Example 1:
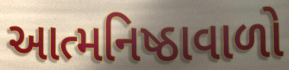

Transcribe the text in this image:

આત્મનિષ્ઠાવાળો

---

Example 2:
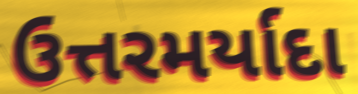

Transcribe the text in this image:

ઉત્તરમર્યાદા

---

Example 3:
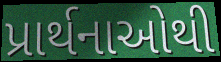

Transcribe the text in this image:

પ્રાર્થનાઓથી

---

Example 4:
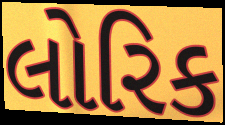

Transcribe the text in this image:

લોરિક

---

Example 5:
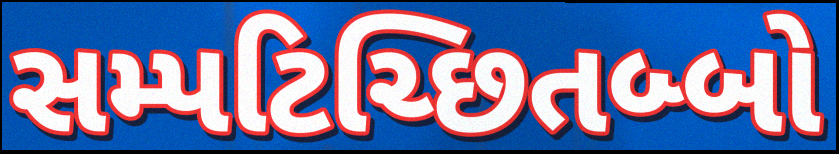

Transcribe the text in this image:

સમ્પટિચ્છિતબ્બો